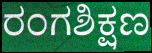
ರಂಗಶಿಕ್ಷಣ